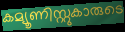
കമ്യൂണിസ്റ്റുകാരുടെ